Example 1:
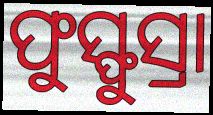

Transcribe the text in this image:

ଫୁସ୍ଫୁସ୍ରା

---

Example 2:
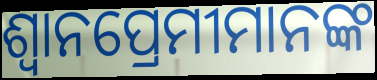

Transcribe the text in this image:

ଶ୍ଵାନପ୍ରେମୀମାନଙ୍କ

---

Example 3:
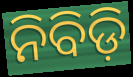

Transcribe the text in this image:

ନିବିଡ଼ି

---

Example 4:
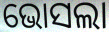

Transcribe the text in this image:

ଭୋସଲା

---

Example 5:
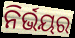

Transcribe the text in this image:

ନିର୍ଭୟର